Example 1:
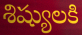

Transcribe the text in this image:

శిష్యులకి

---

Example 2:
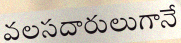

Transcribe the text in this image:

వలసదారులుగానే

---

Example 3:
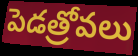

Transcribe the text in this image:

పెడత్రోవలు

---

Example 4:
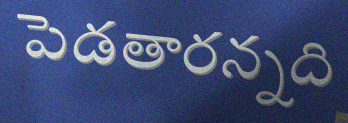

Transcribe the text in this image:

పెడతారన్నది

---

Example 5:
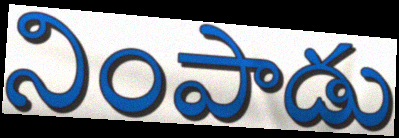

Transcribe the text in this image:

నింపాడు